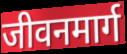
जीवनमार्ग